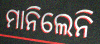
ମାନିଲେନି